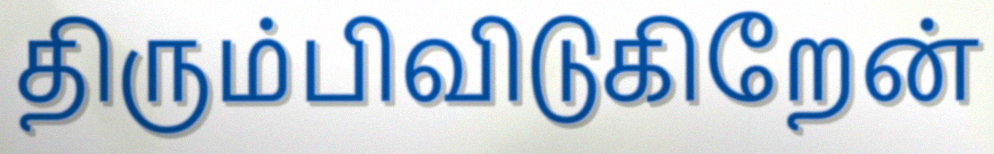
திரும்பிவிடுகிறேன்